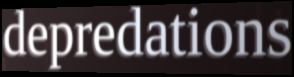
depredations